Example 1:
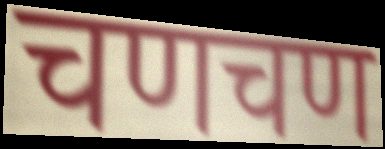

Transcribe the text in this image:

चणचण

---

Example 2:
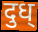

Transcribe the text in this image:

दुध्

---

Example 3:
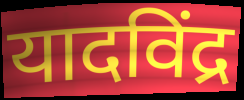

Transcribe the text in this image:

यादविंद्र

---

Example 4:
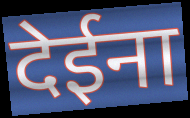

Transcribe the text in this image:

देईना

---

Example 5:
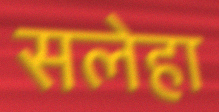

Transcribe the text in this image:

सलेहा